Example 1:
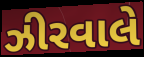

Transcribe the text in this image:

ઝીરવાલે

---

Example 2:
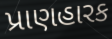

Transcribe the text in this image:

પ્રાણહારક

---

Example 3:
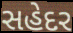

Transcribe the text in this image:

સહેદર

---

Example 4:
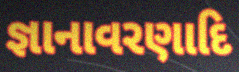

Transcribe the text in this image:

જ્ઞાનાવરણાદિ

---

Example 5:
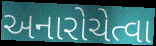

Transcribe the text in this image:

અનારોચેત્વા